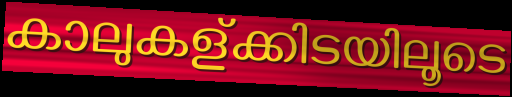
കാലുകള്ക്കിടയിലൂടെ